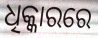
ଧିକ୍କାରରେ